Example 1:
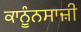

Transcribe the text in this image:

ਕਾਨੂੰਨਸਾਜ਼ੀ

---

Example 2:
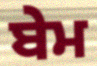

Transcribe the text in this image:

ਬੇਮ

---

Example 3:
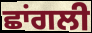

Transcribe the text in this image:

ਛਾਂਗਲੀ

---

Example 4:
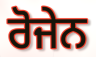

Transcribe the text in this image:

ਰੋਜੇਨ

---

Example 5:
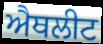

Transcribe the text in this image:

ਐਥਲੀਟ